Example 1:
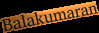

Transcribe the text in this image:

Balakumaran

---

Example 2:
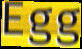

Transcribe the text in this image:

Egg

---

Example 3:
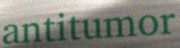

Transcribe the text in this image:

antitumor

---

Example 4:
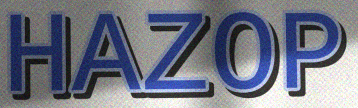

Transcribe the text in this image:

HAZOP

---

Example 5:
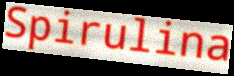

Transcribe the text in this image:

Spirulina